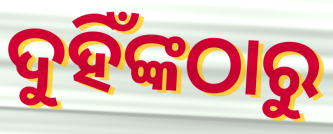
ଦୁହିଁଙ୍କଠାରୁ